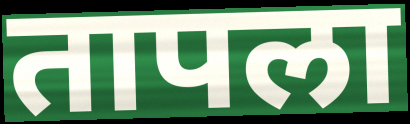
तापला